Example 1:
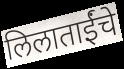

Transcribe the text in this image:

लिलाताईंचे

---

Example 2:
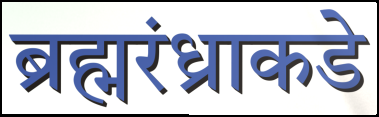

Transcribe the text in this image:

ब्रह्मरंध्राकडे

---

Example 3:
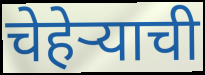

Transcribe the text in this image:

चेहेऱ्याची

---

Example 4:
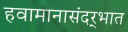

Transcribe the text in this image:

हवामानासंदर्भात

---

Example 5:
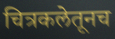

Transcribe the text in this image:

चित्रकलेतूनच